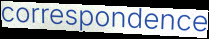
correspondence